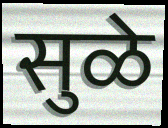
सुळे